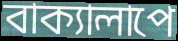
বাক্যালাপে